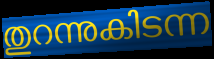
തുറന്നുകിടന്ന